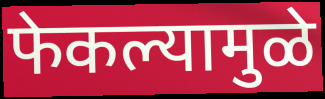
फेकल्यामुळे